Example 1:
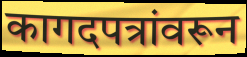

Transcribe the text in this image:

कागदपत्रांवरून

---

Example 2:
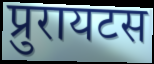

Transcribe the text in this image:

प्रुरायटस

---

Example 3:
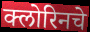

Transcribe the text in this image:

क्लोरिनचे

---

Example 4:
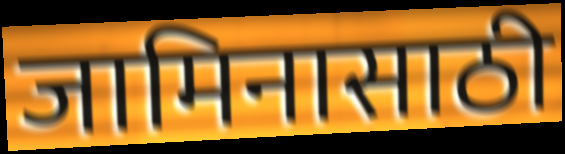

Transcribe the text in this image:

जामिनासाठी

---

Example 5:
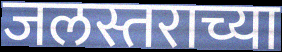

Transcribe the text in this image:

जलस्तराच्या